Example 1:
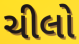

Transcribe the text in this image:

ચીલો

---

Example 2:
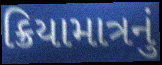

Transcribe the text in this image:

ક્રિયામાત્રનું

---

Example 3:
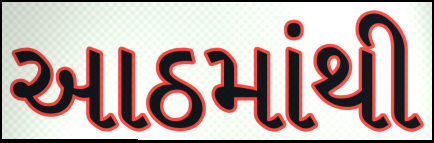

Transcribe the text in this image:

આઠમાંથી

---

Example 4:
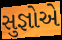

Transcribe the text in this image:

સુજ્ઞોએ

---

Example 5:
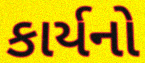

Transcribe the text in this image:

કાર્યનો